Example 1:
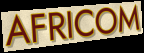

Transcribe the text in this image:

AFRICOM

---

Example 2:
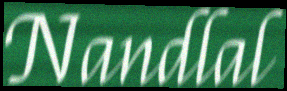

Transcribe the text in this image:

Nandlal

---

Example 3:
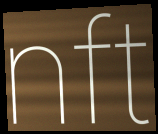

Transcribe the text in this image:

nft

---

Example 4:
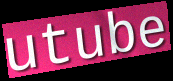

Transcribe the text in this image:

utube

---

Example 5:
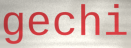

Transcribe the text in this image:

gechi